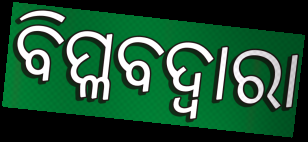
ବିପ୍ଳବଦ୍ୱାରା